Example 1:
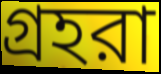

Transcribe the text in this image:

গ্রহরা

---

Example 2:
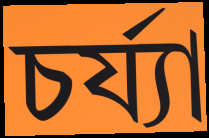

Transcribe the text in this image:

চর্য্যা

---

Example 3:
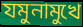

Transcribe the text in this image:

যমুনামুখে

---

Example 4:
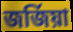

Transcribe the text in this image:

জর্জিয়া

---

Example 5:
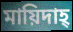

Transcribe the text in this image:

মায়িদাহ্